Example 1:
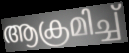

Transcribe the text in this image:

ആക്രമിച്ച്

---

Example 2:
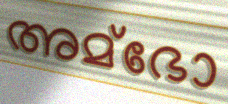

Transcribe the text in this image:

അമ്ഭോ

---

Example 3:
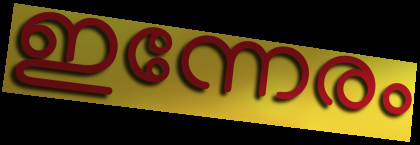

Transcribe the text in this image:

ഇന്നേരം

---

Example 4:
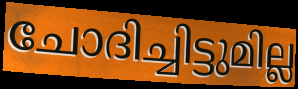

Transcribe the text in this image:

ചോദിച്ചിട്ടുമില്ല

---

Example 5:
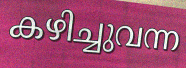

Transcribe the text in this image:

കഴിച്ചുവന്ന